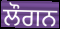
ਲੌਗਨ